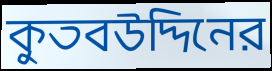
কুতবউদ্দিনের